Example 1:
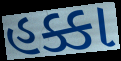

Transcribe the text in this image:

હક્કા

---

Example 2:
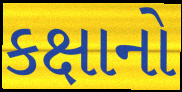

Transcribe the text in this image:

કક્ષાનો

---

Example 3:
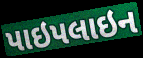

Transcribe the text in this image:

પાઇપલાઇન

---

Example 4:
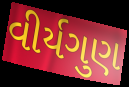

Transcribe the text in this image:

વીર્યગુણ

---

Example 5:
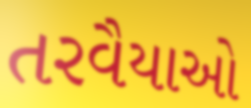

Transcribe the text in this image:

તરવૈયાઓ